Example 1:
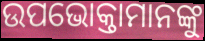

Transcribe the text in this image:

ଉପଭୋକ୍ତାମାନଙ୍କୁ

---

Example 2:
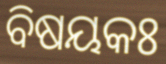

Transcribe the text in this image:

ବିଷୟକଃ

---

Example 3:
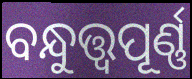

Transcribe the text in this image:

ବନ୍ଧୁତ୍ତ୍ୱପୂର୍ଣ୍ଣ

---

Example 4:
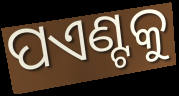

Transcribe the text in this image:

ପଏଣ୍ଟକୁ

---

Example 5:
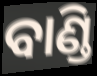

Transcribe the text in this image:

ବାଣ୍ଡି